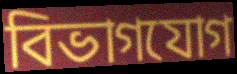
বিভাগযোগ